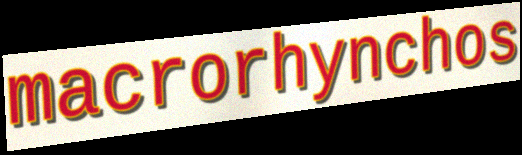
macrorhynchos